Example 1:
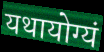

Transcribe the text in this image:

यथायोग्यं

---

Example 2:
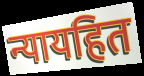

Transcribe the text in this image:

न्यायहित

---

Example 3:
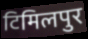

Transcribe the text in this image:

टिमिलपुर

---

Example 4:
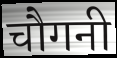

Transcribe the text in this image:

चौगनी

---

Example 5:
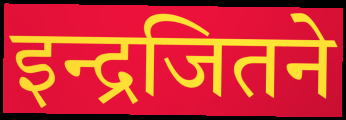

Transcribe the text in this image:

इन्द्रजितने